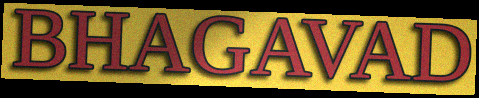
BHAGAVAD